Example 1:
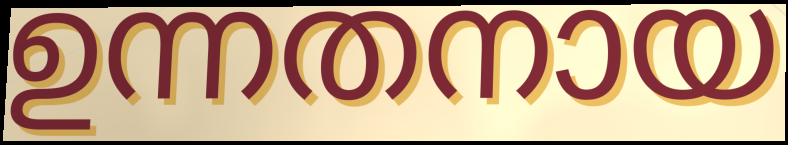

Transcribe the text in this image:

ഉന്നതനായ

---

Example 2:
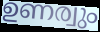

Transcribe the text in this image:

ഉണര്വും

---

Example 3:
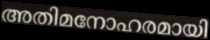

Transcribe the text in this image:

അതിമനോഹരമായി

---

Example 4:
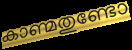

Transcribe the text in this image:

കാണ്മതുണ്ടോ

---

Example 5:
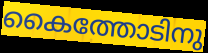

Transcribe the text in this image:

കൈത്തോടിനു